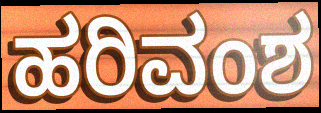
ಹರಿವಂಶ